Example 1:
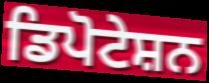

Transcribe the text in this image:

ਡਿਪੋਟੇਸ਼ਨ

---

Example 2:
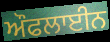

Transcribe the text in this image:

ਔਫਲਾਈਨ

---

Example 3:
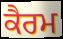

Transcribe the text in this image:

ਕੈਰਮ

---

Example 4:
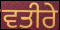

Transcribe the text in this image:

ਵਤੀਰੇ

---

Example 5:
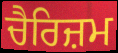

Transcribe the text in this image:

ਚੈਰਿਜ਼ਮ